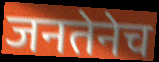
जनतेनेच